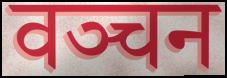
वञ्चन